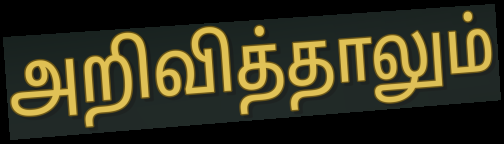
அறிவித்தாலும்